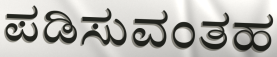
ಪಡಿಸುವಂತಹ